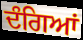
ਦੰਗਿਆਂ